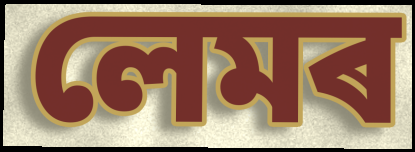
লেমৰ